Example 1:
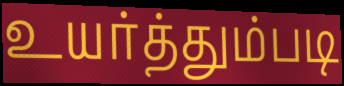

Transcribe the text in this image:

உயர்த்தும்படி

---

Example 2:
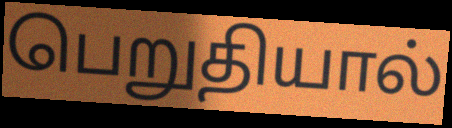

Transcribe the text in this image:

பெறுதியால்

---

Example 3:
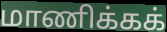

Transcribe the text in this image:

மாணிக்கக்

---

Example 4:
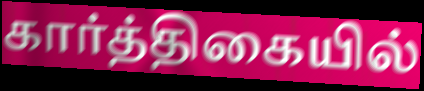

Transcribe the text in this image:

கார்த்திகையில்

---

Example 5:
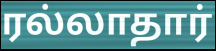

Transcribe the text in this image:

ரல்லாதார்